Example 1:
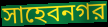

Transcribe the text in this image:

সাহেবনগর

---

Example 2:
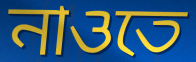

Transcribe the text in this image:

নাওতে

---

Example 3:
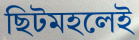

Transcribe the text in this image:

ছিটমহলেই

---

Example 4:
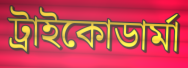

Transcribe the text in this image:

ট্রাইকোডার্মা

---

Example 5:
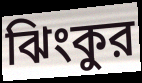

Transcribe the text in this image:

ঝিংকুর